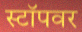
स्टॉपवर